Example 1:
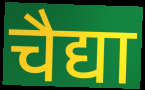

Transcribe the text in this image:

चैद्या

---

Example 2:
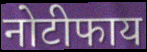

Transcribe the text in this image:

नोटीफाय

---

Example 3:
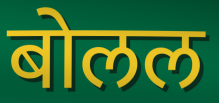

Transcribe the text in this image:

बोलल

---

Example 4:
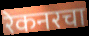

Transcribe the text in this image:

रेकनरचा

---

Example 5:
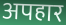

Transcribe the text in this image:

अपहार